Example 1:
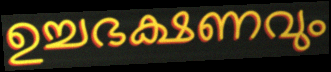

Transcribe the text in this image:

ഉച്ചഭക്ഷണവും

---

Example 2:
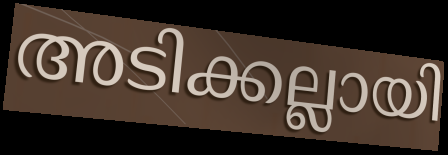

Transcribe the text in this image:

അടിക്കല്ലായി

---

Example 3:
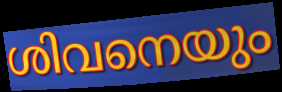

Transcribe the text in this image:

ശിവനെയും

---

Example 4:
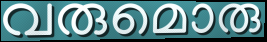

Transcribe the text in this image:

വരുമൊരു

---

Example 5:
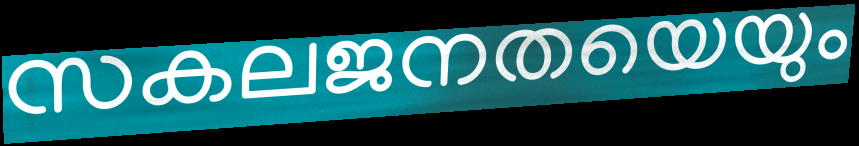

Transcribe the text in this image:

സകലജനതയെയും